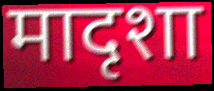
मादृशा